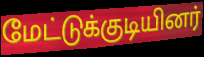
மேட்டுக்குடியினர்